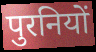
पुरनियों